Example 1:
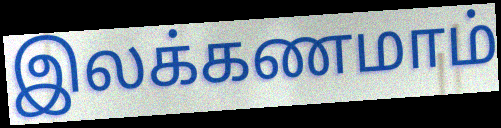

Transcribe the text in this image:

இலக்கணமாம்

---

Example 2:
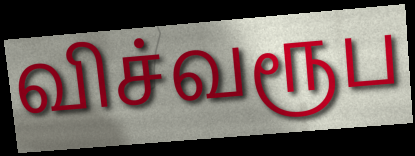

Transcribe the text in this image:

விச்வரூப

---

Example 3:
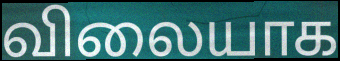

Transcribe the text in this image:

விலையாக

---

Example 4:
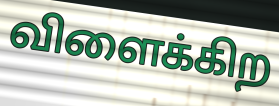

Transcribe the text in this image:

விளைக்கிற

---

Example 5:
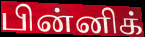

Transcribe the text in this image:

பின்னிக்